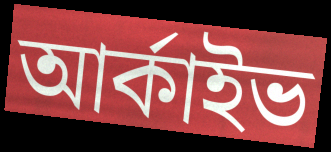
আর্কাইভ